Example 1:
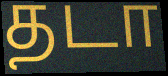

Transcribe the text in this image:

தடா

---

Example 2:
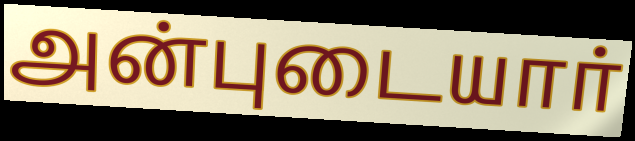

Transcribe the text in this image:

அன்புடையார்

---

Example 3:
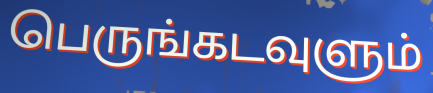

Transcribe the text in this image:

பெருங்கடவுளும்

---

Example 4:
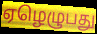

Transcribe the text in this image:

ஏழெழுபது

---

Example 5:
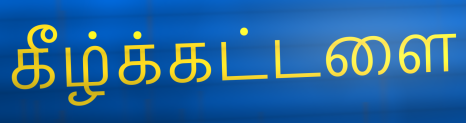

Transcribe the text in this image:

கீழ்க்கட்டளை